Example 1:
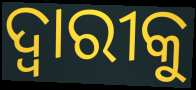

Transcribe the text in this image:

ଦ୍ଵାରୀକୁ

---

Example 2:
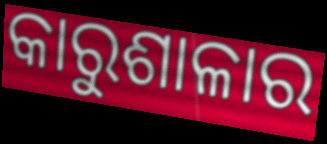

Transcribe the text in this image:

କାରୁଶାଳାର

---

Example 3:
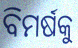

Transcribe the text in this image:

ବିମର୍ଷକୁ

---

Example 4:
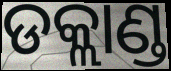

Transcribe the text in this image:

ଡକ୍ଲାଣ୍ଡ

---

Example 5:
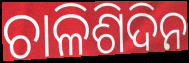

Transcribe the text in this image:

ଚାଳିଶିଦିନ